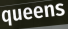
queens